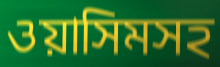
ওয়াসিমসহ